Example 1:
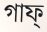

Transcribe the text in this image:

গাফ্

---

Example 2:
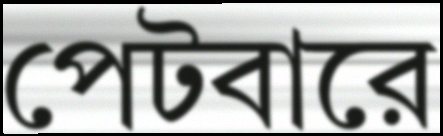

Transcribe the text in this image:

পেটবারে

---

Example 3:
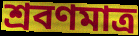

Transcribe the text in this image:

শ্রবণমাত্র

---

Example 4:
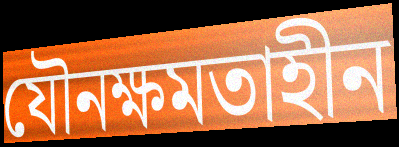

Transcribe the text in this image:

যৌনক্ষমতাহীন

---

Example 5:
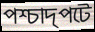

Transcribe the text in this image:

পশ্চাদ্‌পটে